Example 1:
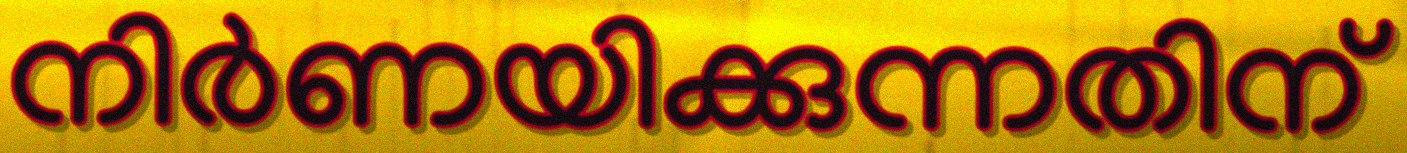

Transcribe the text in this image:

നിർണയിക്കുന്നതിന്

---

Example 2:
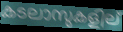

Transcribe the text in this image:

കടലാസുകളില്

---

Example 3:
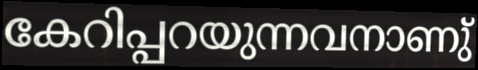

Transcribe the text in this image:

കേറിപ്പറയുന്നവനാണു്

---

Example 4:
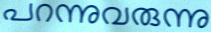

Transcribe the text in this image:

പറന്നുവരുന്നു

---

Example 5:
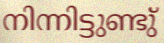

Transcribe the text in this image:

നിന്നിട്ടുണ്ടു്